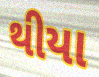
થીયા